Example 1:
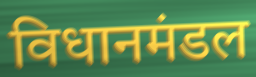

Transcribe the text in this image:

विधानमंडल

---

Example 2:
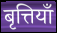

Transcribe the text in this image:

बृत्तियाँ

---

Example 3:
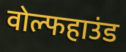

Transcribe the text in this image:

वोल्फहाउंड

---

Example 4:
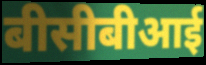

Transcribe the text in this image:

बीसीबीआई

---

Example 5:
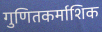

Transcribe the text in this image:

गुणितकर्माशिक